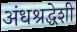
अंधश्रद्धेशी